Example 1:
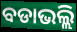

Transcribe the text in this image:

ବଡାଭଲ୍ଲି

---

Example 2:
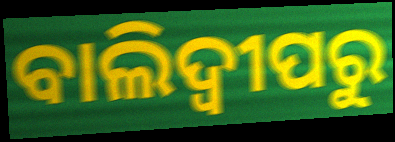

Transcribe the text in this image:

ବାଲିଦ୍ୱୀପରୁ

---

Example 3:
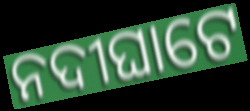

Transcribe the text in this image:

ନଦୀଘାଟେ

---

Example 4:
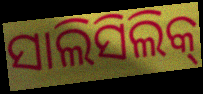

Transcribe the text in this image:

ସାଲିସିଲିକ୍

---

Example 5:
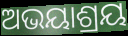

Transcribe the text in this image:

ଅଭୟାଶ୍ରୟ